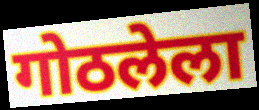
गोठलेला